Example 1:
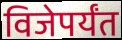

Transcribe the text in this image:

विजेपर्यंत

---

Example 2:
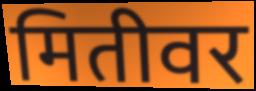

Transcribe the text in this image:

मितीवर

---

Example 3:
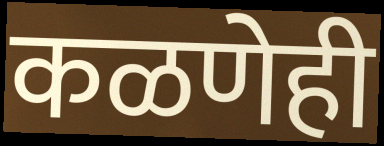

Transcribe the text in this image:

कळणेही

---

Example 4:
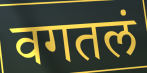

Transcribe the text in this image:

वगतलं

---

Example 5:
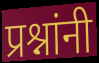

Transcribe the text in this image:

प्रश्नांनी